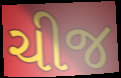
ચીજ